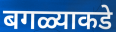
बगळ्याकडे